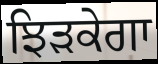
ਝਿੜਕੇਗਾ